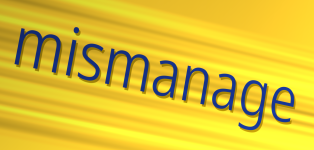
mismanage